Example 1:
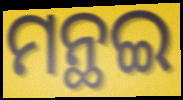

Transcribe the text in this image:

ମନ୍ଥଇ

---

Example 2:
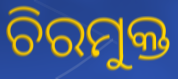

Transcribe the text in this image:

ଚିରମୁକ୍ତ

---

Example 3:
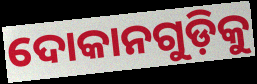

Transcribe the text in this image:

ଦୋକାନଗୁଡ଼ିକୁ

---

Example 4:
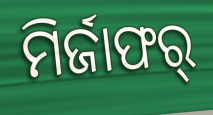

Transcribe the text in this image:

ମିର୍ଜାଫର୍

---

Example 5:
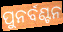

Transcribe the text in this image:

ପୁନର୍ବଣ୍ଟନ